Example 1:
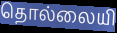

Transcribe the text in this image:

தொல்லையி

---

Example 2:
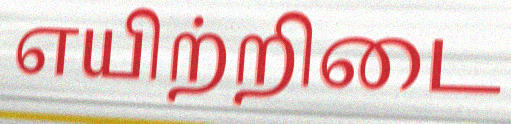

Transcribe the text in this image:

எயிற்றிடை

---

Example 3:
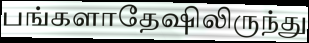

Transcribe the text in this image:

பங்களாதேஷிலிருந்து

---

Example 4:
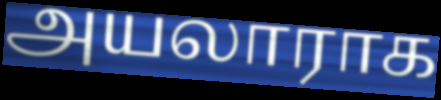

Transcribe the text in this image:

அயலாராக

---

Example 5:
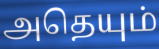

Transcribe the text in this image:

அதெயும்